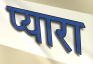
प्‍यारा